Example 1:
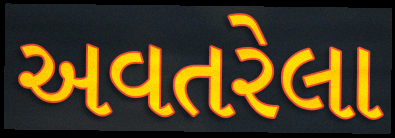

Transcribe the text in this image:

અવતરેલા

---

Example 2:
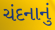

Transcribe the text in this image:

ચંદનાનું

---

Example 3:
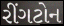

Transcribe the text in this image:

રીંગટોન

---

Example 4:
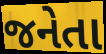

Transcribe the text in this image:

જનેતા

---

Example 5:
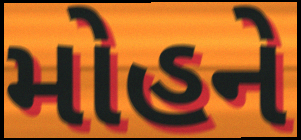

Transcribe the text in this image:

મોહને